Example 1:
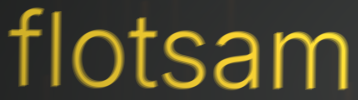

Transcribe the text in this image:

flotsam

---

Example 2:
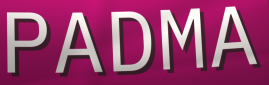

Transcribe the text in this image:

PADMA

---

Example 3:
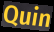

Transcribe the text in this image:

Quin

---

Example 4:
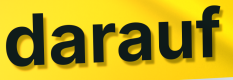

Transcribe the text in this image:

darauf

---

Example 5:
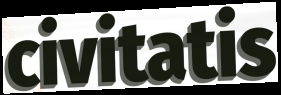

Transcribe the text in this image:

civitatis